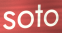
soto